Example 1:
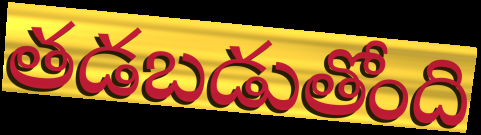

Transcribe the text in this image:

తడబడుతోంది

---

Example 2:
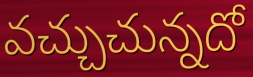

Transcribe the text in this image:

వచ్చుచున్నదో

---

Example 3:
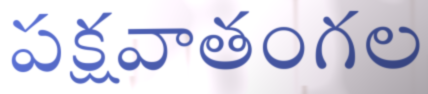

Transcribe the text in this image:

పక్షవాతంగల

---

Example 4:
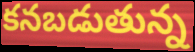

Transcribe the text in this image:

కనబడుతున్న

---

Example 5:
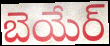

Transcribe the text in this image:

బెయేర్